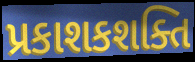
પ્રકાશકશક્તિ